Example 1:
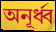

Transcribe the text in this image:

অনূর্ধ্ব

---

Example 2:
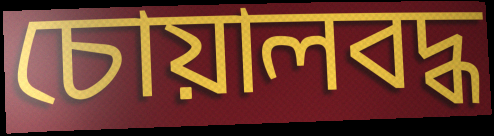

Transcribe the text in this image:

চোয়ালবদ্ধ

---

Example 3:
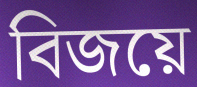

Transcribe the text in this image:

বিজয়ে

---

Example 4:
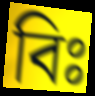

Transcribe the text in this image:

বিঃ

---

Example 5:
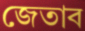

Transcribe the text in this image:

জেতাব